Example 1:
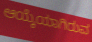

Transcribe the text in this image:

ಆಯ್ಕೆಯಾಗಿರುವ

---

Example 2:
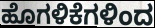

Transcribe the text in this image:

ಹೊಗಳಿಕೆಗಳಿಂದ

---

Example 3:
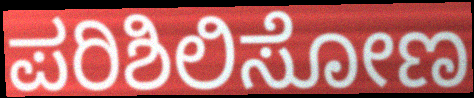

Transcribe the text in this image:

ಪರಿಶಿಲಿಸೋಣ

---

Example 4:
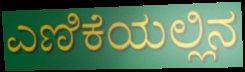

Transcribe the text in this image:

ಎಣಿಕೆಯಲ್ಲಿನ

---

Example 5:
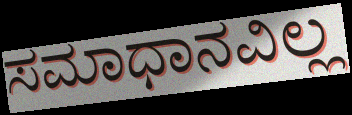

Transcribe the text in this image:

ಸಮಾಧಾನವಿಲ್ಲ